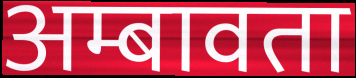
अम्बावता